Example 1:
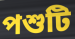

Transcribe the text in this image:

পশুটি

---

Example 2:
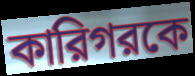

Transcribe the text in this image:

কারিগরকে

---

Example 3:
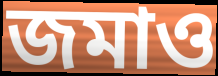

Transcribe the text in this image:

জমাও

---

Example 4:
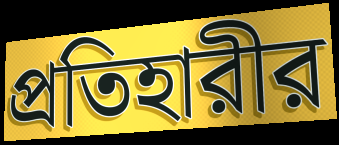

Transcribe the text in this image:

প্রতিহারীর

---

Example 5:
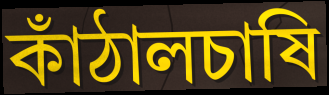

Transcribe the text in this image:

কাঁঠালচাষি